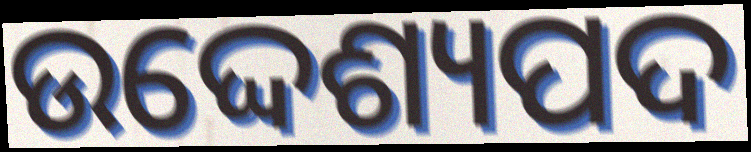
ଉଦ୍ଦେଶ୍ୟପଦ